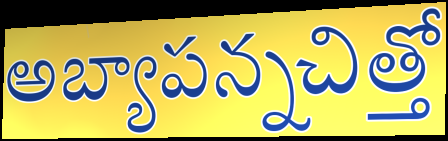
అబ్యాపన్నచిత్తో